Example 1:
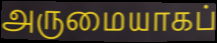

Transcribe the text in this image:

அருமையாகப்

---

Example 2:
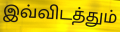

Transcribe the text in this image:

இவ்விடத்தும்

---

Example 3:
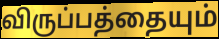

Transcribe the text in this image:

விருப்பத்தையும்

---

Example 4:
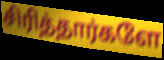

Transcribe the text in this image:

சிரித்தார்களே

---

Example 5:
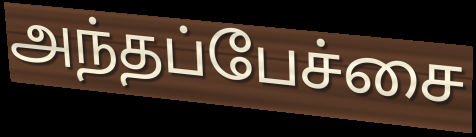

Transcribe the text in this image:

அந்தப்பேச்சை